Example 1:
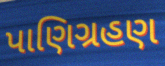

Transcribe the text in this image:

પાણિગ્રહણ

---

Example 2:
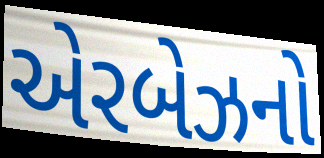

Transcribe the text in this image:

એરબેઝનો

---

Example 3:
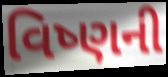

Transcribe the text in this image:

વિષ્ણની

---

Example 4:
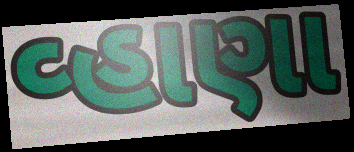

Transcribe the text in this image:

વ્હાણા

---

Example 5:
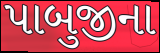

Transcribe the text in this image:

પાબુજીના